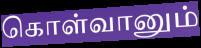
கொள்வானும்